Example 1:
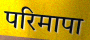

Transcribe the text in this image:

परिमापा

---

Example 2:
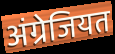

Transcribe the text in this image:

अंग्रेजियत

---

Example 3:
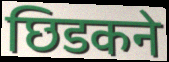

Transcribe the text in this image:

छिडकने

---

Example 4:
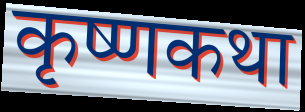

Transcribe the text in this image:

कृष्णकथा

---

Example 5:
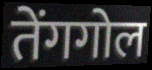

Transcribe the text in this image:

तेंगगोल